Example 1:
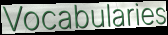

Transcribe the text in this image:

Vocabularies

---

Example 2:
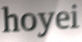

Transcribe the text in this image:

hoyei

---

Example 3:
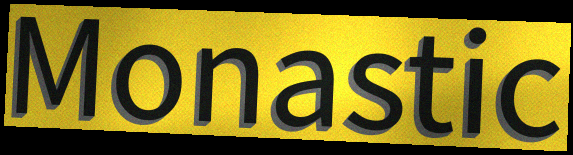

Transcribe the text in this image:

Monastic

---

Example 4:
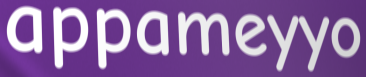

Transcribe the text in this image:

appameyyo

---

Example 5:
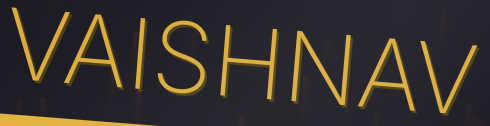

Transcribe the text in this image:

VAISHNAV